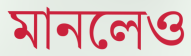
মানলেও